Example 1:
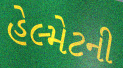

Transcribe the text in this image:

હેલ્મેટની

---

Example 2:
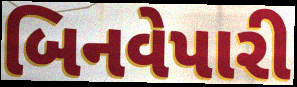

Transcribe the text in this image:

બિનવેપારી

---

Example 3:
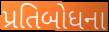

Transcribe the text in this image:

પ્રતિબોધના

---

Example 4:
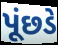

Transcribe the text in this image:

પૂંછડે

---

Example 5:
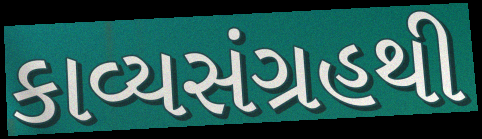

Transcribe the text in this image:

કાવ્યસંગ્રહથી